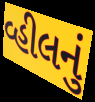
વ્હીલનું